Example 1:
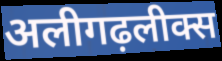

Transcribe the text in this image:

अलीगढ़लीक्स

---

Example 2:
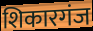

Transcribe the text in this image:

शिकारगंज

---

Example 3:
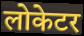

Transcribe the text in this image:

लोकेटर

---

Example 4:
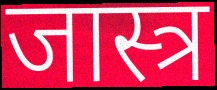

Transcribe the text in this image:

जास्त्र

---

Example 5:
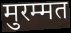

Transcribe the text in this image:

मुरम्मत